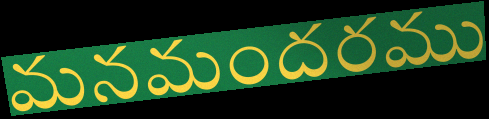
మనమందరము